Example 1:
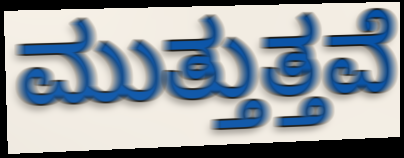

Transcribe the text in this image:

ಮುತ್ತುತ್ತವೆ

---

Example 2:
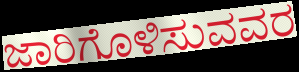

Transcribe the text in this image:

ಜಾರಿಗೊಳಿಸುವವರ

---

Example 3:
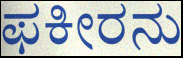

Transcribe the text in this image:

ಫಕೀರನು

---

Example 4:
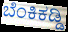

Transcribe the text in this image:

ಬೆಂಕಿಕಡ್ಡಿ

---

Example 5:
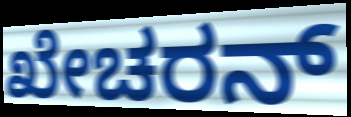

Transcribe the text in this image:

ಖೇಚರನ್